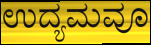
ಉದ್ಯಮವೂ